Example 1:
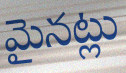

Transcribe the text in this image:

మైనట్లు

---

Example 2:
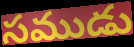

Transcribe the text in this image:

సముడు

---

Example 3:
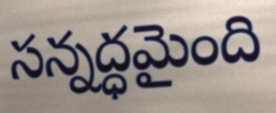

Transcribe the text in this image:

సన్నద్ధమైంది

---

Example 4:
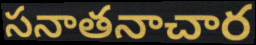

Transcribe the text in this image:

సనాతనాచార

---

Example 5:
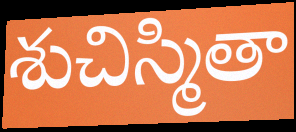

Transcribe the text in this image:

శుచిస్మితా